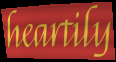
heartily